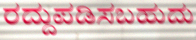
ರದ್ದುಪಡಿಸಬಹುದು